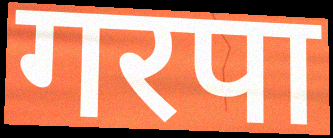
गरपा